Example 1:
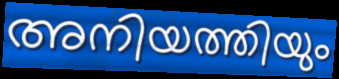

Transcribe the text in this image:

അനിയത്തിയും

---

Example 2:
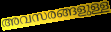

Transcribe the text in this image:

അവസരങ്ങളുള്ള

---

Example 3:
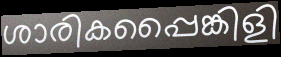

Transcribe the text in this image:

ശാരികപ്പൈങ്കിളി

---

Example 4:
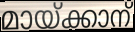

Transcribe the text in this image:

മായ്ക്കാന്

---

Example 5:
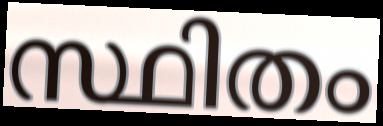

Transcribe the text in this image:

സ്ഥിതം